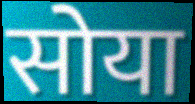
सोया